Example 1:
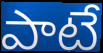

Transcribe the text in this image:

పాటే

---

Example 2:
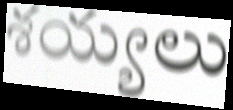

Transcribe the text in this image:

శయ్యలు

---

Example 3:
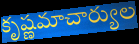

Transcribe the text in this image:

కృష్ణమాచార్యుల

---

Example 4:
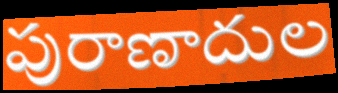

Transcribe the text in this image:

పురాణాదుల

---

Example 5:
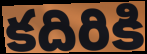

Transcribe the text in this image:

కదిరికి